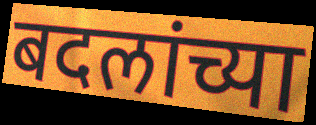
बदलांच्या